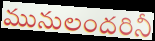
మునులందరినీ